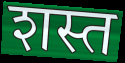
शस्त